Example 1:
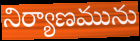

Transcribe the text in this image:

నిర్యాణమును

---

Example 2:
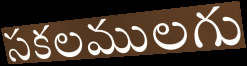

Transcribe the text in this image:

సకలములగు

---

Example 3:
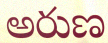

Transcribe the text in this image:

అరుణ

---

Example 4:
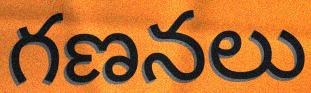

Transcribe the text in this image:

గణనలు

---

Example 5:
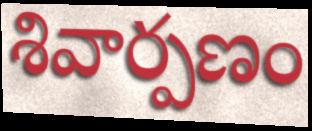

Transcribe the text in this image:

శివార్పణం